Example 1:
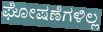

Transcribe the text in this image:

ಘೋಷಣೆಗಳಿಲ್ಲ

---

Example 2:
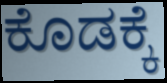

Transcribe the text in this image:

ಕೊಡಕ್ಕೆ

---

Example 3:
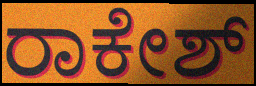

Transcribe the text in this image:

ರಾಕೇಶ್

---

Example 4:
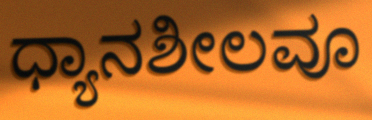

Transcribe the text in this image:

ಧ್ಯಾನಶೀಲವೂ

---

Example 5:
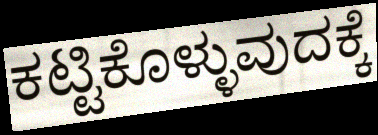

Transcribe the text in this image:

ಕಟ್ಟಿಕೊಳ್ಳುವುದಕ್ಕೆ